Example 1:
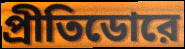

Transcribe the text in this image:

প্রীতিডোরে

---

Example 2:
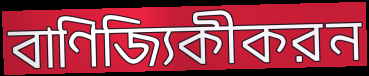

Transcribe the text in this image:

বাণিজ্যিকীকরন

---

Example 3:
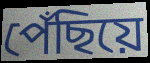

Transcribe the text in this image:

পেঁছিয়ে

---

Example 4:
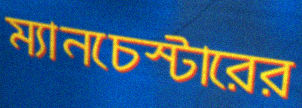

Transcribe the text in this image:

ম্যানচেস্টারের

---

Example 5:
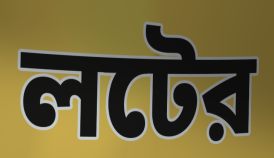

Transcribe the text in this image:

লটের